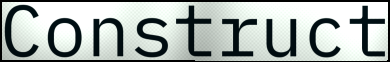
Construct